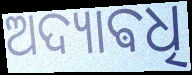
ଅଦ୍ୟାଵଧି